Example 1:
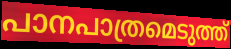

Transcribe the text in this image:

പാനപാത്രമെടുത്ത്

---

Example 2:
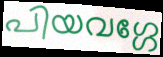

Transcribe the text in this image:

പിയവഗ്ഗേ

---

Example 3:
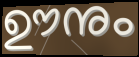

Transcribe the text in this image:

ഊനും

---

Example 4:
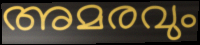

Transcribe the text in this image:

അമരവും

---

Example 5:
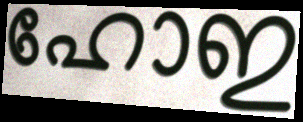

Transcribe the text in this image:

ഹോഇ